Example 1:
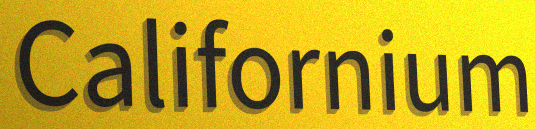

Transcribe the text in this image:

Californium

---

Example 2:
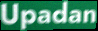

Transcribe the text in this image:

Upadan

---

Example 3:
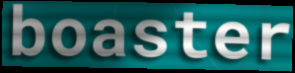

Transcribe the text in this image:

boaster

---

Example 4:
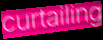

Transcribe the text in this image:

curtailing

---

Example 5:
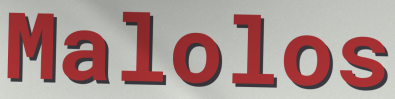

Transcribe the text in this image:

Malolos